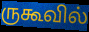
ருகூவில்